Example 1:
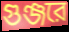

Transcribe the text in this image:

গুঞ্জরে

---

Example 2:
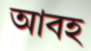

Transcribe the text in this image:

আবহ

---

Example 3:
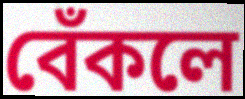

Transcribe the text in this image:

বেঁকলে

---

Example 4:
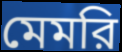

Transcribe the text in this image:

মেমরি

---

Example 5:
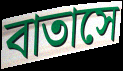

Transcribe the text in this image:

বাতাসে